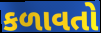
કળાવતો